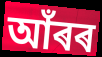
আঁৰৰ